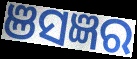
ଞସଜ୍ଞର